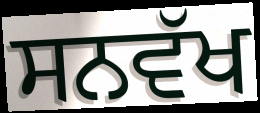
ਸਨਵੱਖ